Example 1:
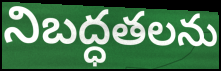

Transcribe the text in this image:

నిబద్ధతలను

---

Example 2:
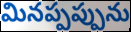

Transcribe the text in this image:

మినప్పప్పును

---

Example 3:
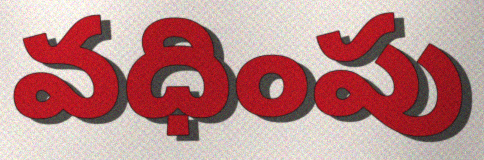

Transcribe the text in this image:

వధింపు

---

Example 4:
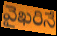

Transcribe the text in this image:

వైఖరినే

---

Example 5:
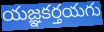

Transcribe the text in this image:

యజ్ఞకర్తయగు